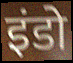
इंडो